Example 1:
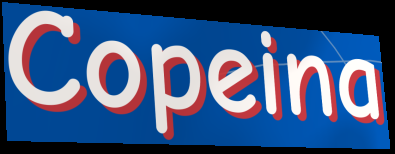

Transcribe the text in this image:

Copeina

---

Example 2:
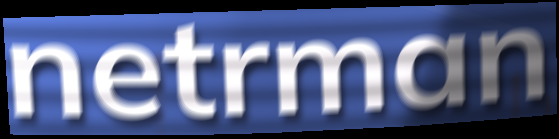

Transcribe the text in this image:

netrman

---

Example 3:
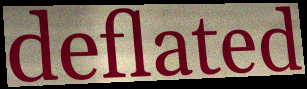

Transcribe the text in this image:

deflated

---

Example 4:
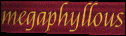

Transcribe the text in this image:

megaphyllous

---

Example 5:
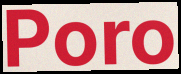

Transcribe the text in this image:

Poro